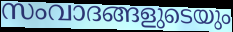
സംവാദങ്ങളുടെയും